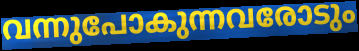
വന്നുപോകുന്നവരോടും